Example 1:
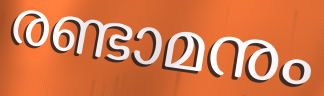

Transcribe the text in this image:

രണ്ടാമനും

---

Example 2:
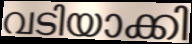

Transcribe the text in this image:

വടിയാക്കി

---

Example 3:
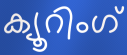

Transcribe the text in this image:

ക്യൂറിംഗ്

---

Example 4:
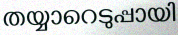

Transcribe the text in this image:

തയ്യാറെടുപ്പായി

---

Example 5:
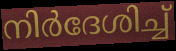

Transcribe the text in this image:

നിർദേശിച്ച്